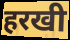
हरखी